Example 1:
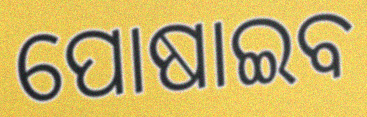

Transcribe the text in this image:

ପୋଷାଇବ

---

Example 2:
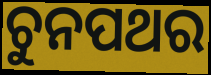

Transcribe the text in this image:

ଚୁନପଥର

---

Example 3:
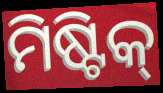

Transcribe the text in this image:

ମିଷ୍ଟିକ୍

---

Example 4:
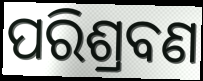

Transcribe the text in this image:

ପରିଶ୍ରବଣ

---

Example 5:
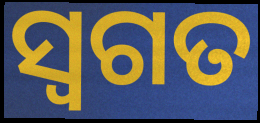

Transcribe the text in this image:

ସ୍ଵଗତ